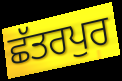
ਛੱਤਰਪੁਰ